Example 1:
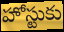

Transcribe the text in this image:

హోస్టుకు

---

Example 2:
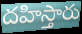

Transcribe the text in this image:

దహిస్తారు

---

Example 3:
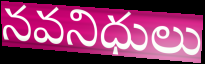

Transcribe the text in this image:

నవనిధులు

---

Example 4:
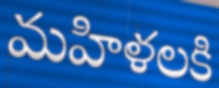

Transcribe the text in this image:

మహిళలకి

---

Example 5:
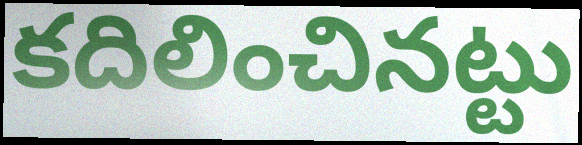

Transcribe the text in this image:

కదిలించినట్టు